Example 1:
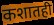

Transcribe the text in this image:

कशातही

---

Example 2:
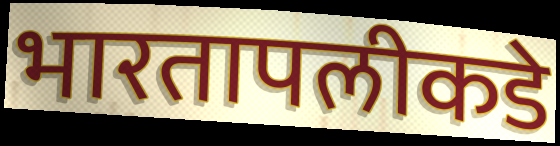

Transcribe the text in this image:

भारतापलीकडे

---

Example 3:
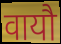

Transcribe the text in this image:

वायौ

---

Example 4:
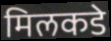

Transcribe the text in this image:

मिलकडे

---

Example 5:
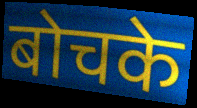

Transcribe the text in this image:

बोचके